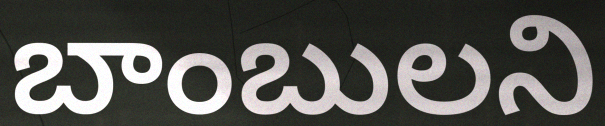
బాంబులని